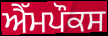
ਐੱਮਪੌਕਸ